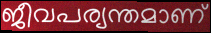
ജീവപര്യന്തമാണ്